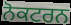
ਨੋਕਟਰਨ